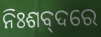
ନିଃଶବ୍‌ଦରେ